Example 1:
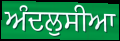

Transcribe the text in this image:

ਅੰਦਲੁਸੀਆ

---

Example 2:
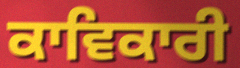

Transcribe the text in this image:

ਕਾਵਿਕਾਰੀ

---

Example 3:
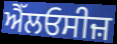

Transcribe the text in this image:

ਐੱਲਓਸੀਜ਼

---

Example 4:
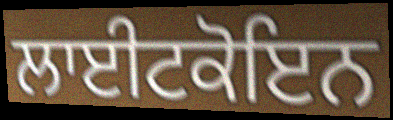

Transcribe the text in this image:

ਲਾਈਟਕੋਇਨ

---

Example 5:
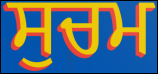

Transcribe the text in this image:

ਸੁਚਮ